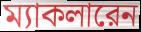
ম্যাকলারেন